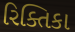
રિક્તિકા